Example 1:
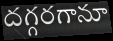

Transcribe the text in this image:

దగ్గరగానూ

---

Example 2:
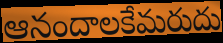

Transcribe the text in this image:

ఆనందాలకేమరుదు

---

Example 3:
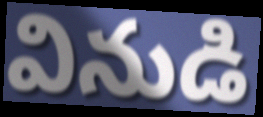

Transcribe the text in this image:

వినుడి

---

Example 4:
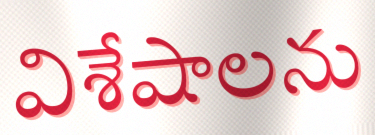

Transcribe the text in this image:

విశేషాలను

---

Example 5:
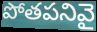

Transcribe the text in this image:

పోతపనివై